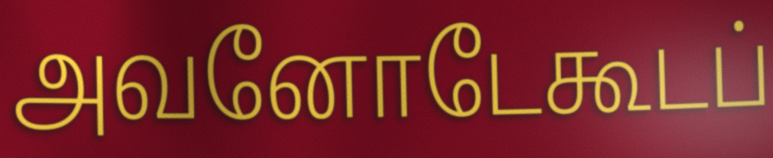
அவனோடேகூடப்